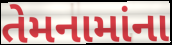
તેમનામાંના